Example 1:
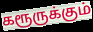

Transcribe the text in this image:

கரூருக்கும்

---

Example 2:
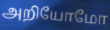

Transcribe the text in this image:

அறியோமோ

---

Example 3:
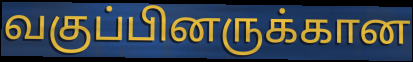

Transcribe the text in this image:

வகுப்பினருக்கான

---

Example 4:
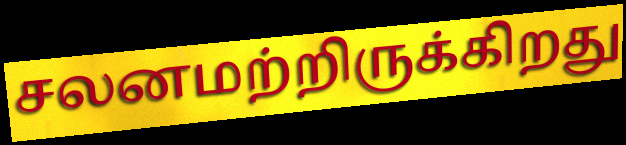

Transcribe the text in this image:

சலனமற்றிருக்கிறது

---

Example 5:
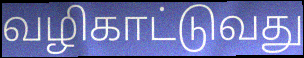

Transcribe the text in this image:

வழிகாட்டுவது